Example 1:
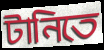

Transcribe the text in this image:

টানিতে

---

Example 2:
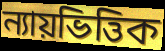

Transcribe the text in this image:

ন্যায়ভিত্তিক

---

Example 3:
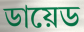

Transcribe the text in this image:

ডায়েড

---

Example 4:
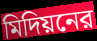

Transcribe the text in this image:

মিদিয়নের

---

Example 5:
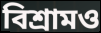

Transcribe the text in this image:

বিশ্রামও